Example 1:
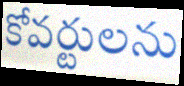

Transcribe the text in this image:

కోవర్టులను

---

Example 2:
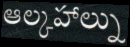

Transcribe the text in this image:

ఆల్కహాల్ను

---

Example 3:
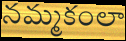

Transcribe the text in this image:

నమ్మకంలా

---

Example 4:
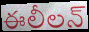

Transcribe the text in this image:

ఈలీలన్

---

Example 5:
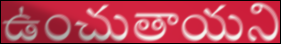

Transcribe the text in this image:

ఉంచుతాయని